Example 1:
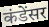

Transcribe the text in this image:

कंडेंसर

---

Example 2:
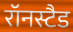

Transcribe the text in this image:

रॉनस्टैड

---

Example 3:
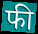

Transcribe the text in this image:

फी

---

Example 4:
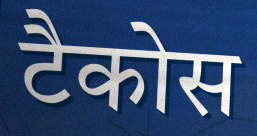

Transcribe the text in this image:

टैकोस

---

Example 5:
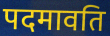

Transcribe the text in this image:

पदमावति